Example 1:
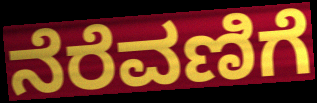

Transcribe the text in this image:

ನೆರೆವಣಿಗೆ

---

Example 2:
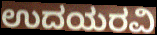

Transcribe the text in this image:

ಉದಯರವಿ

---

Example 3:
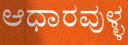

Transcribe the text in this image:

ಆಧಾರವುಳ್ಳ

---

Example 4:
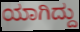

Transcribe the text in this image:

ಯಾಗಿದ್ದು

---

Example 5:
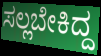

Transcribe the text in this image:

ಸಲ್ಲಬೇಕಿದ್ದ